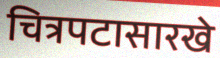
चित्रपटासारखे